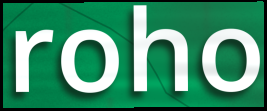
roho